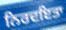
ਨਿਰਦਇਤਾ